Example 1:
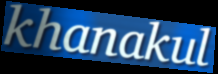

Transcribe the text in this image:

khanakul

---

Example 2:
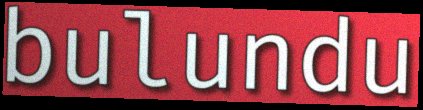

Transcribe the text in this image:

bulundu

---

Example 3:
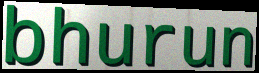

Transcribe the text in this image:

bhurun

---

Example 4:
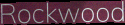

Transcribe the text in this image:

Rockwood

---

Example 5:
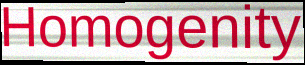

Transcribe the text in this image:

Homogenity